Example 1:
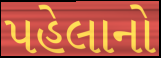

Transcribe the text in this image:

પહેલાનો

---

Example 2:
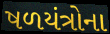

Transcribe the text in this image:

ષળયંત્રોના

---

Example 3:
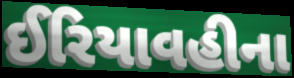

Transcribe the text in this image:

ઈરિયાવહીના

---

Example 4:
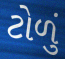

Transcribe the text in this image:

ટોળું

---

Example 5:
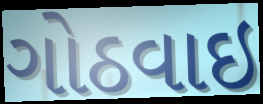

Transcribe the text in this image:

ગોઠવાઇ